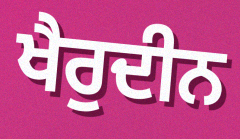
ਖੈਰੁਦੀਨ